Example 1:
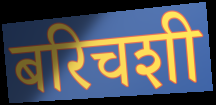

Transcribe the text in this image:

बरिचशी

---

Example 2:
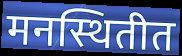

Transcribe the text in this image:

मनस्थितीत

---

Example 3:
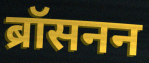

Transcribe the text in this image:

ब्रॉसनन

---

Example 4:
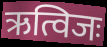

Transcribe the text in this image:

ऋत्विजः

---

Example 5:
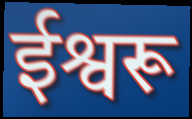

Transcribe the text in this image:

ईश्वरू